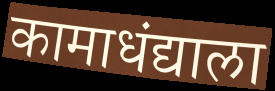
कामाधंद्याला